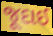
જૂદાઈ